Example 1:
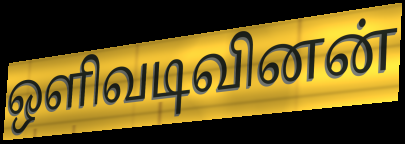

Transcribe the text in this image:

ஒளிவடிவினன்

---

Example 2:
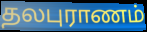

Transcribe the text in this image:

தலபுராணம்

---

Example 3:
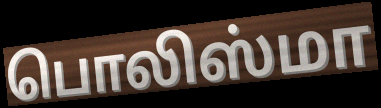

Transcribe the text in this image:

பொலிஸ்மா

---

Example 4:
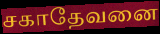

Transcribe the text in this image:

சகாதேவனை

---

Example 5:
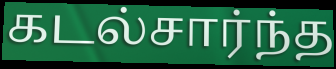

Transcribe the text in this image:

கடல்சார்ந்த